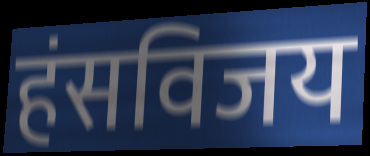
हंसविजय